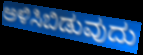
ಅಳಿಸಿಬಿಡುವುದು